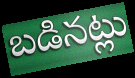
బడినట్లు